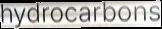
hydrocarbons